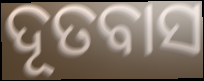
ଦୂତବାସ